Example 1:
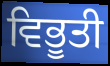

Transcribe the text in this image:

ਵਿਭੂਤੀ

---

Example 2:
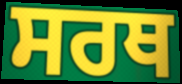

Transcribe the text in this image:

ਸਰਥ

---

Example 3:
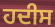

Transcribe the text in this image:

ਹਦੀਸ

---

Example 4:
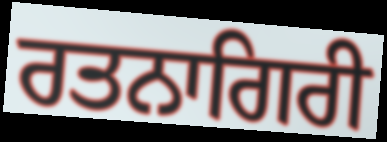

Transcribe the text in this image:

ਰਤਨਾਗਿਰੀ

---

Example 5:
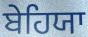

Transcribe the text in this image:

ਬੇਹਿਯਾ